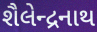
શૈલેન્દ્રનાથ